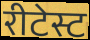
रीटेस्ट